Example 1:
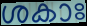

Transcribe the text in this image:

ശകാഃ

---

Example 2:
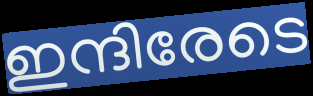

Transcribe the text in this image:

ഇന്ദിരേടെ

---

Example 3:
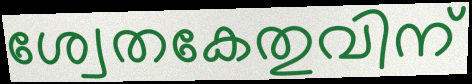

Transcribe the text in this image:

ശ്വേതകേതുവിന്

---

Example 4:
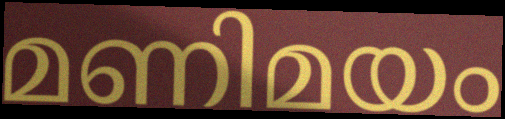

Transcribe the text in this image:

മണിമയം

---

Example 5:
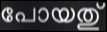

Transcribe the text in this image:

പോയതു്